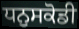
ਧਨੁਸਕੋਡੀ